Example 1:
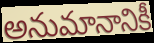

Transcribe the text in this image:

అనుమానానికీ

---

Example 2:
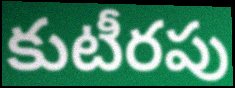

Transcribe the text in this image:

కుటీరపు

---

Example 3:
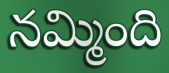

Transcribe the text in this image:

నమ్మింది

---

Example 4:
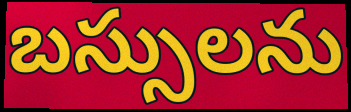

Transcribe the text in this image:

బస్సులను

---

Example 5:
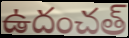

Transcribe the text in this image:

ఉదంచత్